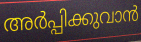
അർപ്പിക്കുവാൻ